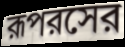
রূপরসের